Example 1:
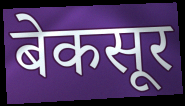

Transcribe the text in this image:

बेकसूर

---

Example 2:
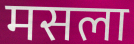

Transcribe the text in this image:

मसला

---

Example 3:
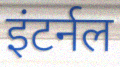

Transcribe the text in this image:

इंटर्नल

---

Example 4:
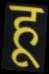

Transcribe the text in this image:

हू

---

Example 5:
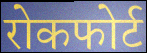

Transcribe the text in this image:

रोकफोर्ट